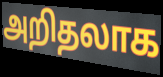
அறிதலாக